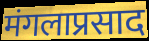
मंगलाप्रसाद